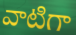
వాటిగా